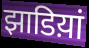
झाडिय़ां